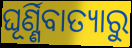
ଘୂର୍ଣ୍ଣିବାତ୍ୟାରୁ